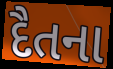
દૈતના